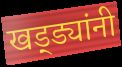
खड्ड्यांनी